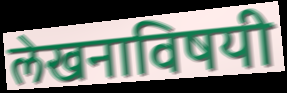
लेखनाविषयी